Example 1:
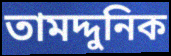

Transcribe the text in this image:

তামদ্দুনিক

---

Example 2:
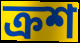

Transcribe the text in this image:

ক্রশ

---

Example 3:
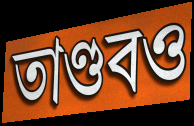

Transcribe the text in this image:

তাণ্ডবও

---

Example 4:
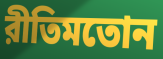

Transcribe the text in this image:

রীতিমতোন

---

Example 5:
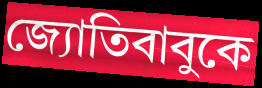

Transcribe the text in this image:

জ্যোতিবাবুকে